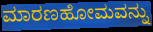
ಮಾರಣಹೋಮವನ್ನು